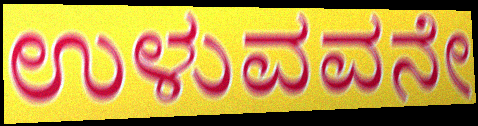
ಉಳುವವನೇ